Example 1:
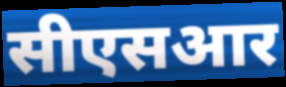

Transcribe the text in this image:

सीएसआर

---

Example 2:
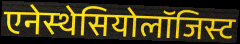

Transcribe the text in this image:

एनेस्थेसियोलॉजिस्ट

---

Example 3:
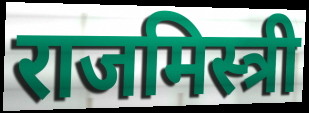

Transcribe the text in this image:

राजमिस्त्री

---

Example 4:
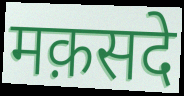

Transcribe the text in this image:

मक़सदे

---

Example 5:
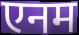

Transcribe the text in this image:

एनम